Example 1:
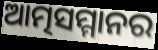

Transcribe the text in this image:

ଆତ୍ମସମ୍ମାନର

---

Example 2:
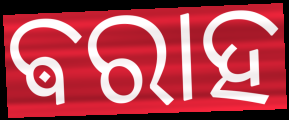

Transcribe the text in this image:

ଵରାହ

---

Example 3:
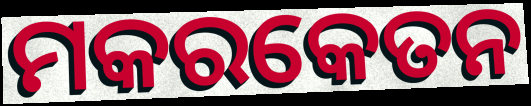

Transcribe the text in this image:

ମକରକେତନ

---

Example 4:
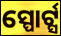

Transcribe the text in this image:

ସ୍ପୋର୍ଟ୍ସ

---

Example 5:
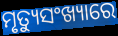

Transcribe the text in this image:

ମୃତ୍ୟୁସଂଖ୍ୟାରେ